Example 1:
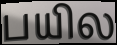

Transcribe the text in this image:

பயில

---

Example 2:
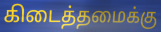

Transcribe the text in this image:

கிடைத்தமைக்கு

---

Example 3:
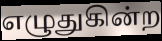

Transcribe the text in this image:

எழுதுகின்ற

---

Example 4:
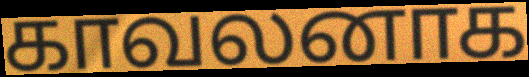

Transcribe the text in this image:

காவலனாக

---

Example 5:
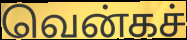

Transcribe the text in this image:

வென்கச்